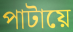
পাটায়ে